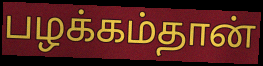
பழக்கம்தான்